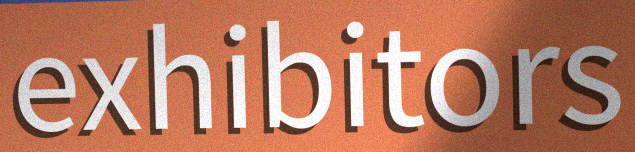
exhibitors